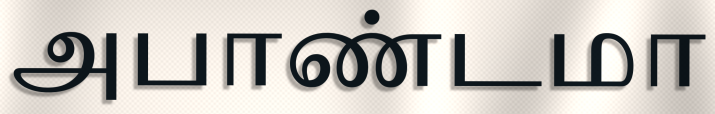
அபாண்டமா